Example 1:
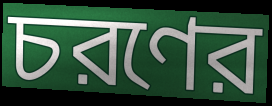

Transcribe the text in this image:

চরণের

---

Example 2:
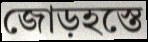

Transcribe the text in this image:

জোড়হস্তে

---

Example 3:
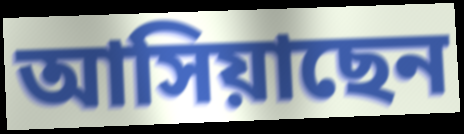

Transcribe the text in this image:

আসিয়াছেন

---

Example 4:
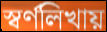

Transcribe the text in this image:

স্বর্ণলিখায়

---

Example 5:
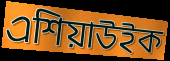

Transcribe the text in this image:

এশিয়াউইক